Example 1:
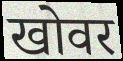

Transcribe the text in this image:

खोवर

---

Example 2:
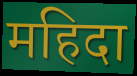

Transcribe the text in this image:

महिदा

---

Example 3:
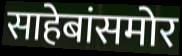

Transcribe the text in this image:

साहेबांसमोर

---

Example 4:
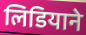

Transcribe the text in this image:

लिडियाने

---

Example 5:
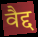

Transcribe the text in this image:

वैद्द